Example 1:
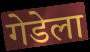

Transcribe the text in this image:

गेडेला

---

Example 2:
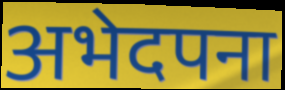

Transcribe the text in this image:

अभेदपना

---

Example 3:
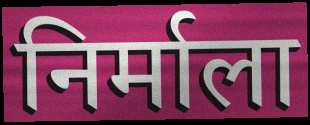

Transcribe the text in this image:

निर्माला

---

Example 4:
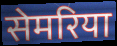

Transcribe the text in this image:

सेमरिया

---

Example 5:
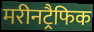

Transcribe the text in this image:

मरीनट्रैफिक